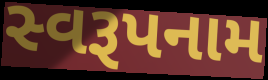
સ્વરૂપનામ